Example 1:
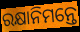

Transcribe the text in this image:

ରକ୍ଷାନିମନ୍ତେ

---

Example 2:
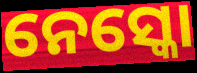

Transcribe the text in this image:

ନେସ୍କୋ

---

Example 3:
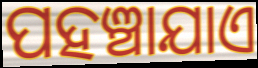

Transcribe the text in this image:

ପହଞ୍ଚାଯାଏ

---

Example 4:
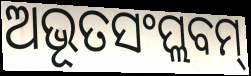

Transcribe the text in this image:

ଅଭୂତସଂପ୍ଲବମ୍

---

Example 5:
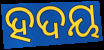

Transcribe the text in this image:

ହଦୟ